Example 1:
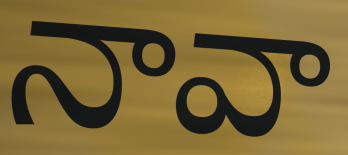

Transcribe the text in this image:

నావా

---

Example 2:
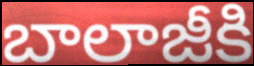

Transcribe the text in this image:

బాలాజీకి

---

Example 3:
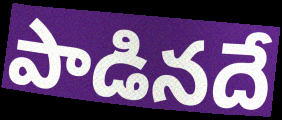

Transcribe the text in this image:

పాడినదే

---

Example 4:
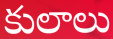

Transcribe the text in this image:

కులాలు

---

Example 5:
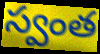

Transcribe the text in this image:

స్వంత